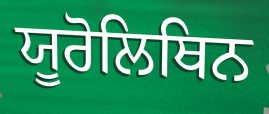
ਯੂਰੋਲਿਥਿਨ